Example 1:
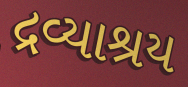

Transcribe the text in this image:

દ્રવ્યાશ્રય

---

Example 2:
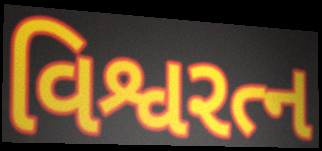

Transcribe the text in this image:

વિશ્વરત્ન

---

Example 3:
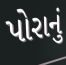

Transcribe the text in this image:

પોરાનું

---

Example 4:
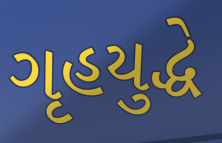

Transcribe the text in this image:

ગૃહયુદ્ધે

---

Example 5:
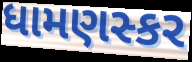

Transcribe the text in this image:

ધામણસ્કર